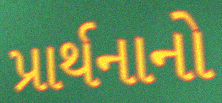
પ્રાર્થનાનો